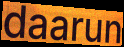
daarun